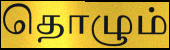
தொழும்